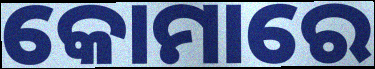
କୋମାରେ